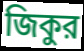
জিকুর